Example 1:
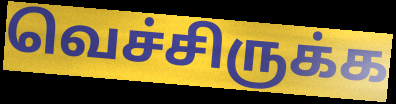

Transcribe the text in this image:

வெச்சிருக்க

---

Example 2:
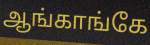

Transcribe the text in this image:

ஆங்காங்கே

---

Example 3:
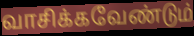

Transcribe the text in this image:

வாசிக்கவேண்டும்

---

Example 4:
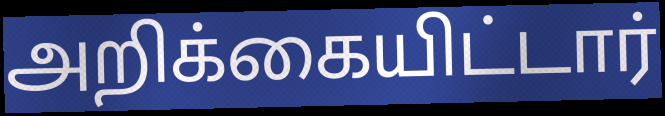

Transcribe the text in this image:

அறிக்கையிட்டார்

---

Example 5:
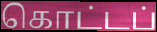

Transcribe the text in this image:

கொட்டப்